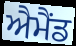
ਐਮੈਂਡ